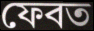
ফেবত